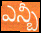
ఎన్బీ